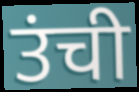
उंची